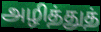
அழித்துத்